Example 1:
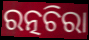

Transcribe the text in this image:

ରତ୍ନଚିରା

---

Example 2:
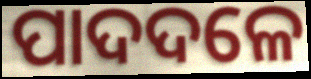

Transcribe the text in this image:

ପାଦଦଳେ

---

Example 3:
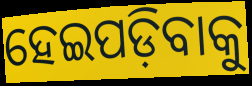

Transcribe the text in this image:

ହେଇପଡ଼ିବାକୁ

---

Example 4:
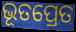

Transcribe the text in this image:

ଭୂତପ୍ରେତ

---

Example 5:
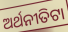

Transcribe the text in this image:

ଅର୍ଥନୀତିଟା